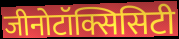
जीनोटॉक्सिसिटी